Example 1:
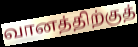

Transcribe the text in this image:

வானத்திற்குத்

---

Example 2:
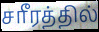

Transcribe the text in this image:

சரீரத்தில்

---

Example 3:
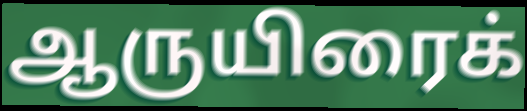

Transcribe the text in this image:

ஆருயிரைக்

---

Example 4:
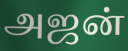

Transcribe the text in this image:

அஜன்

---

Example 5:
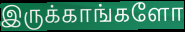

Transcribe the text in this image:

இருக்காங்களோ